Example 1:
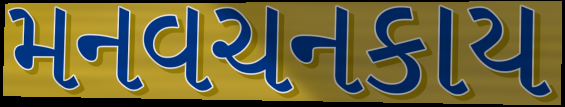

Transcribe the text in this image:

મનવચનકાય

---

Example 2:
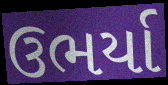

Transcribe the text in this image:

ઉભર્યા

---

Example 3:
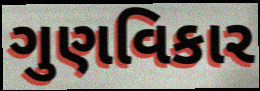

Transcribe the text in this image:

ગુણવિકાર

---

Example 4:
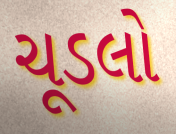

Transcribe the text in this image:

ચૂડલો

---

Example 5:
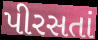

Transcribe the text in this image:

પીરસતાં